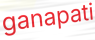
ganapati